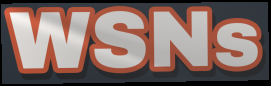
WSNs